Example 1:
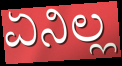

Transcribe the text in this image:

ಏನಿಲ್ಲ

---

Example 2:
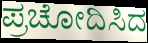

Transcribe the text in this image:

ಪ್ರಚೋದಿಸಿದ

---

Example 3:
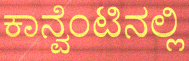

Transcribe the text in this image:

ಕಾನ್ವೆಂಟಿನಲ್ಲಿ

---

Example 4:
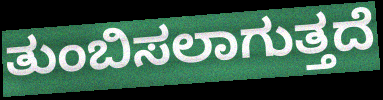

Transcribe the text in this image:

ತುಂಬಿಸಲಾಗುತ್ತದೆ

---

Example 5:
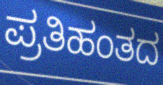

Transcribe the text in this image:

ಪ್ರತಿಹಂತದ